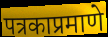
पत्रकाप्रमाणे